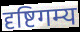
दृष्टिगम्य